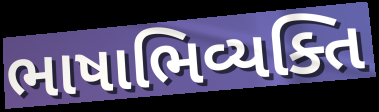
ભાષાભિવ્યક્તિ